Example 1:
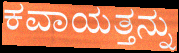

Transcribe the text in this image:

ಕವಾಯತ್ತನ್ನು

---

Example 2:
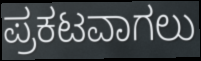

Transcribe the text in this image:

ಪ್ರಕಟವಾಗಲು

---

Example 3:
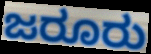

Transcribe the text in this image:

ಜರೂರು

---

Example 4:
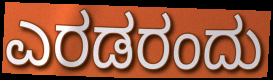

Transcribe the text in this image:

ಎರಡರಂದು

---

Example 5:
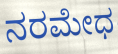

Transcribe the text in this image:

ನರಮೇಧ